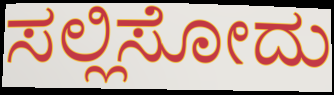
ಸಲ್ಲಿಸೋದು